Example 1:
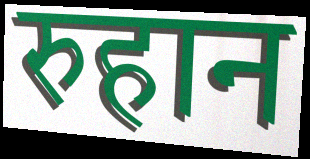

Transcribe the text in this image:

रुहान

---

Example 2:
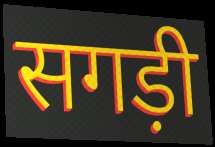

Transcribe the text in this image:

सगड़ी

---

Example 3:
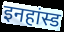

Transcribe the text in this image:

इनहांस्ड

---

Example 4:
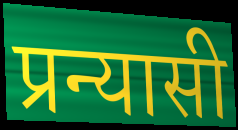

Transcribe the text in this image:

प्रन्यासी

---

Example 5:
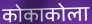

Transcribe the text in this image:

कोकाकोला